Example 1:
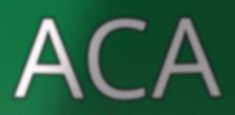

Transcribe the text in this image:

ACA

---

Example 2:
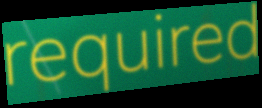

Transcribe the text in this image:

required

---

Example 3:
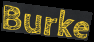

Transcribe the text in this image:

Burke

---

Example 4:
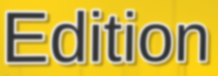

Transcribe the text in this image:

Edition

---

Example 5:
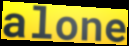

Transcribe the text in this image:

alone